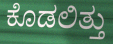
ಕೊಡಲಿತ್ತು